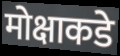
मोक्षाकडे